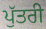
ਪੁੱਤਰੀ